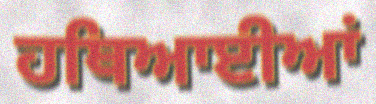
ਹਥਿਆਈਆਂ